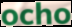
ocho